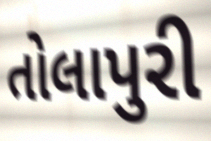
તોલાપુરી